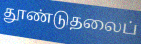
தூண்டுதலைப்